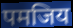
पमजिय